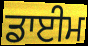
ਡਾਈਮ